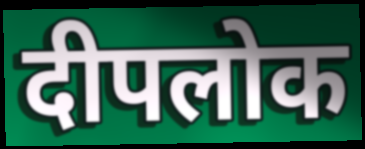
दीपलोक